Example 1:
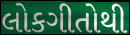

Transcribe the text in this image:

લોકગીતોથી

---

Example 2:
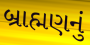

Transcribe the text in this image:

બ્રાહ્મણનું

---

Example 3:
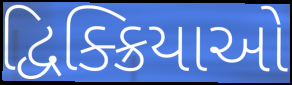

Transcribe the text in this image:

દ્વિક્ક્રિયાઓ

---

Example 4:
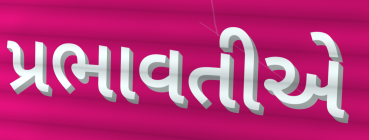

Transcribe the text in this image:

પ્રભાવતીએ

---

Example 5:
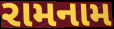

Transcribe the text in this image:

રામનામ